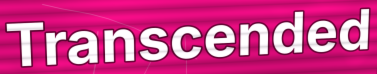
Transcended